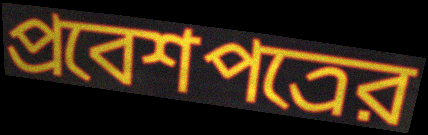
প্রবেশপত্রের